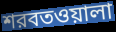
শরবতওয়ালা